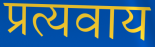
प्रत्यवाय